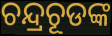
ଚନ୍ଦ୍ରଚୂଡଙ୍କ